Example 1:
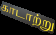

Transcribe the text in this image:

காடாற்று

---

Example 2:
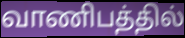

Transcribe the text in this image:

வாணிபத்தில்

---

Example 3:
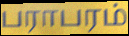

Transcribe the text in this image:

பராபரம்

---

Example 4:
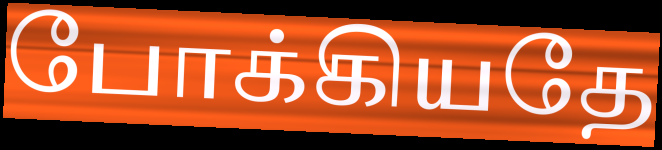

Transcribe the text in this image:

போக்கியதே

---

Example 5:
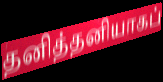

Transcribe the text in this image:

தனித்தனியாகப்